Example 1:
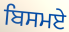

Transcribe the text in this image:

ਬਿਸਮਏ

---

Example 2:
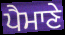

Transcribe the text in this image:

ਪੈਮਾਣੇ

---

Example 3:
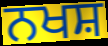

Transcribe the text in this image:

ਨਖਸ਼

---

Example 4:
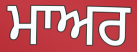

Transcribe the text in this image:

ਮਾਅਰ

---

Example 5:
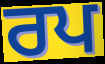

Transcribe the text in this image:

ਰਪ